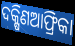
ଦକ୍ଷିଣଆଫ୍ରିକା